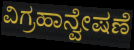
ವಿಗ್ರಹಾನ್ವೇಷಣೆ